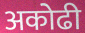
अकोढी